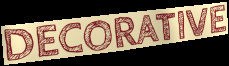
DECORATIVE